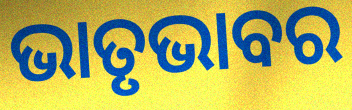
ଭାତୃଭାବର